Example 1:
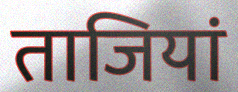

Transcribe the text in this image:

ताजियां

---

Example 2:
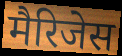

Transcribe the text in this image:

मैरिजेस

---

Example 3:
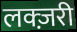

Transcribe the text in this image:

लक्ज़री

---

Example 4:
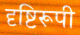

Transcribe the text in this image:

दृष्टिरूपी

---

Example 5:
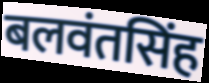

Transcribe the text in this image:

बलवंतसिंह